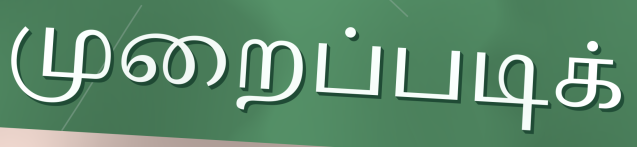
முறைப்படிக்